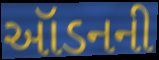
ઑડનની